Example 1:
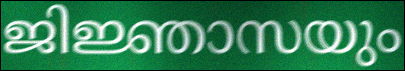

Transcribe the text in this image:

ജിജ്ഞാസയും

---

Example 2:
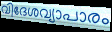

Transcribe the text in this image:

വിദേശവ്യാപാരം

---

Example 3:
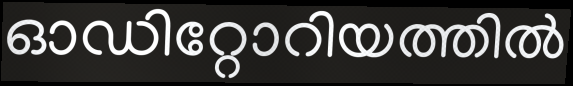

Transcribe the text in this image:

ഓഡിറ്റോറിയത്തിൽ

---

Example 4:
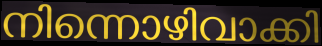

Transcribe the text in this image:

നിന്നൊഴിവാക്കി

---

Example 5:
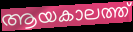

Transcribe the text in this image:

ആയകാലത്ത്